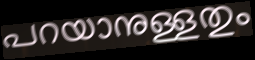
പറയാനുള്ളതും